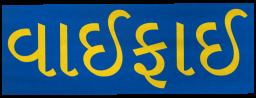
વાઈફાઈ